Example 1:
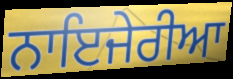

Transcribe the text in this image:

ਨਾਇਜੇਰੀਆ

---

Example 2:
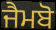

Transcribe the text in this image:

ਜੈਮਬੋ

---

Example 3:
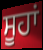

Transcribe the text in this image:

ਸੂਹਾਂ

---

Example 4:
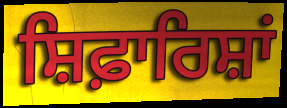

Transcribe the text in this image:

ਸ਼ਿਫ਼ਾਰਿਸ਼ਾਂ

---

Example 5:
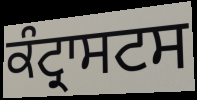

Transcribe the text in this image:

ਕੰਟ੍ਰਾਸਟਸ